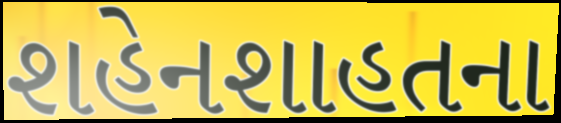
શહેનશાહતના